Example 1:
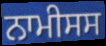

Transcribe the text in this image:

ਨਾਮੀਸਸ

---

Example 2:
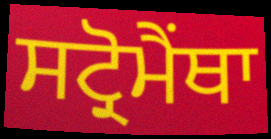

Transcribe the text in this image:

ਸਟ੍ਰੋਮੈਂਥਾ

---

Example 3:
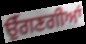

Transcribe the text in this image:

ਉੱਗਣਗੀਆਂ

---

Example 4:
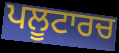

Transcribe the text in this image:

ਪਲੂਟਾਰਚ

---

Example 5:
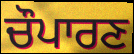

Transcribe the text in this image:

ਚੌਪਾਰਣ